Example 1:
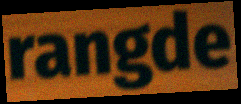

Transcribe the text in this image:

rangde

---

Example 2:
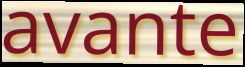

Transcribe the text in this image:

avante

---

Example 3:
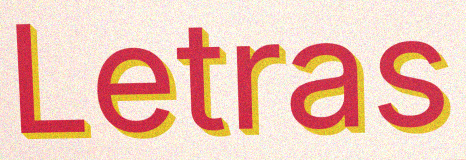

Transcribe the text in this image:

Letras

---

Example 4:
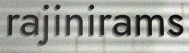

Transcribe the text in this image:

rajinirams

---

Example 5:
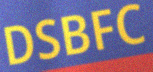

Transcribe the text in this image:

DSBFC